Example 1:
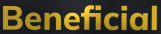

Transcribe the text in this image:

Beneficial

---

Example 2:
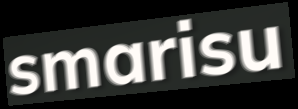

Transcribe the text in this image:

smarisu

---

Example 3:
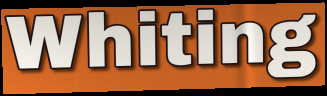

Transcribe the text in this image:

Whiting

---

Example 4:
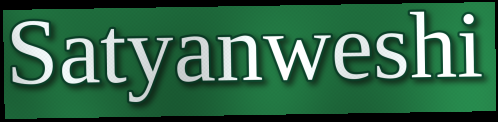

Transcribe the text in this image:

Satyanweshi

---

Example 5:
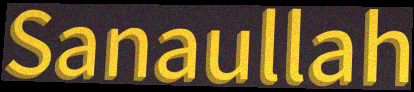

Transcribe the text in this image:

Sanaullah